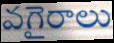
వగైరాలు